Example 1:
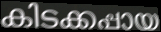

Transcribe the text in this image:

കിടക്കപ്പായ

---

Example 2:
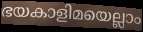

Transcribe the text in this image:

ഭയകാളിമയെല്ലാം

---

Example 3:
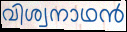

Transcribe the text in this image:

വിശ്വനാഥൻ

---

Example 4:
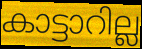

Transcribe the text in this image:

കാട്ടാറില്ല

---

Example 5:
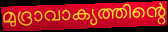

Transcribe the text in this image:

മുദ്രാവാക്യത്തിന്റെ